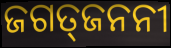
ଜଗତ୍‍ଜନନୀ